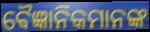
ଵୈଜ୍ଞାନିକମାନଙ୍କ